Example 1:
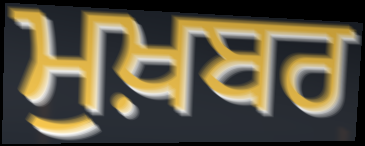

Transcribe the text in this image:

ਮੁਖ਼ਬਰ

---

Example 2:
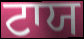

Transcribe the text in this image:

ਟਾਯ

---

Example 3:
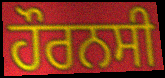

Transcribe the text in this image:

ਹੌਰਨਸੀ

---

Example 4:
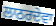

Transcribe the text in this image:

ਲਾਠਰਦੇਵਾ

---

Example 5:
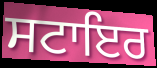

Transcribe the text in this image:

ਸਟਾਇਰ